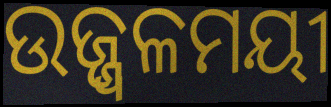
ଉଜ୍ଜ୍ୱଳମୟୀ